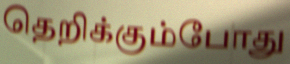
தெறிக்கும்போது